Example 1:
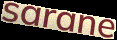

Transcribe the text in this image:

sarane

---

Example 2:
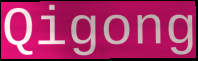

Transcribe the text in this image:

Qigong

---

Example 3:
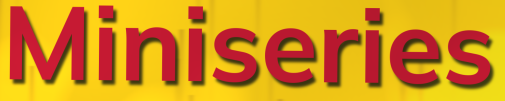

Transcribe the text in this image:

Miniseries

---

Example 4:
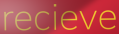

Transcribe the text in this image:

recieve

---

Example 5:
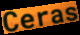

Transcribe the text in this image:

Ceras